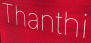
Thanthi